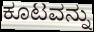
ಕೂಟವನ್ನು